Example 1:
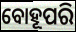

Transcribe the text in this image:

ବୋହୂପରି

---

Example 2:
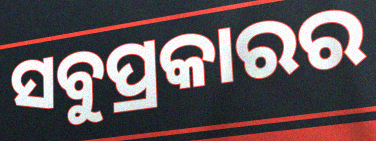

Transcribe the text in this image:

ସବୁପ୍ରକାରର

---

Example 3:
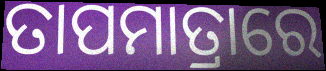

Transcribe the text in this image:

ତାପମାତ୍ରାରେ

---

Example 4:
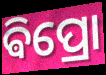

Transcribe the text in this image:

ଵିପ୍ରୋ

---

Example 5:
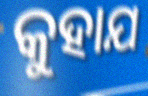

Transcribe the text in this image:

କୁହାଯ